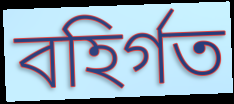
বহির্গত